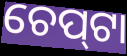
ଚେପ୍‌ଟା